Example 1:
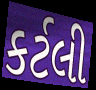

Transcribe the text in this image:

કર્ટલી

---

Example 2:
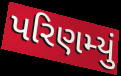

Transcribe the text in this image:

પરિણમ્યું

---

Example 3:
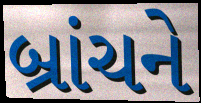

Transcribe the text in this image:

બ્રાંચને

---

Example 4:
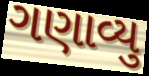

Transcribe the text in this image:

ગણાવ્યુ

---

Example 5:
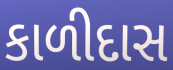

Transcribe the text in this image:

કાળીદાસ